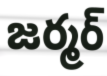
జర్మర్